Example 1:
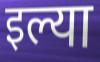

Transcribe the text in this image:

इल्या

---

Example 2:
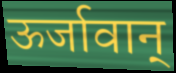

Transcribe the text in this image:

ऊर्जावान्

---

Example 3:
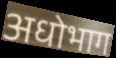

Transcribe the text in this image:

अधोभाग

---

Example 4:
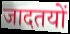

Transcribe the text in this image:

जादतयों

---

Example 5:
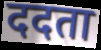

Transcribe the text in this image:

ददता